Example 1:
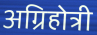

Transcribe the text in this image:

अग्रिहोत्री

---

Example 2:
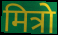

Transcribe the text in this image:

मित्रो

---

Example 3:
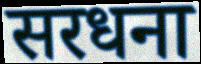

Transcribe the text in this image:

सरधना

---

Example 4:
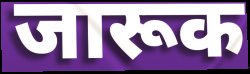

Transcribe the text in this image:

जारूक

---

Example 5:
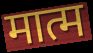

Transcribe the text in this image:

मात्म